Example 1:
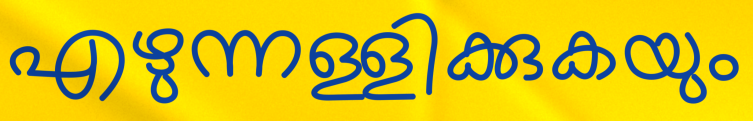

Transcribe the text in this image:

എഴുന്നള്ളിക്കുകയും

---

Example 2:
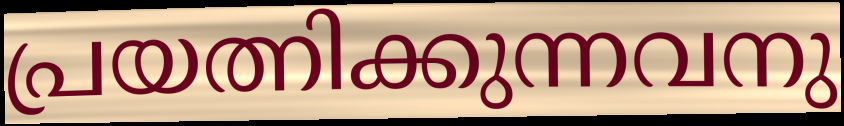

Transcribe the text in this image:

പ്രയത്നിക്കുന്നവനു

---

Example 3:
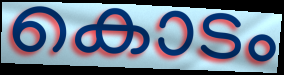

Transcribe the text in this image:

കൊടം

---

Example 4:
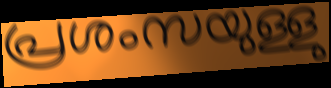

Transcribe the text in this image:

പ്രശംസയുള്ളു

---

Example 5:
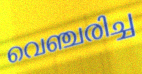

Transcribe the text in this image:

വെഞ്ചരിച്ച